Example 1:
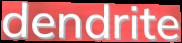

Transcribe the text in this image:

dendrite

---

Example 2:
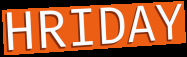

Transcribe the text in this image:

HRIDAY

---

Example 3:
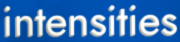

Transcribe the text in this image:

intensities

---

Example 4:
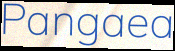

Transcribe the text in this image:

Pangaea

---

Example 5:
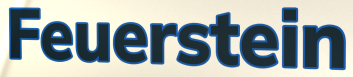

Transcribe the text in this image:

Feuerstein